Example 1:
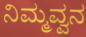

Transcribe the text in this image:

ನಿಮ್ಮವ್ವನ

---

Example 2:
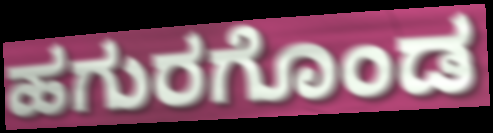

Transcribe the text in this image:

ಹಗುರಗೊಂಡ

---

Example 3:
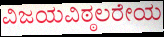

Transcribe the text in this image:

ವಿಜಯವಿಠ್ಠಲರೇಯ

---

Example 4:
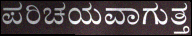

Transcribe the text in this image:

ಪರಿಚಯವಾಗುತ್ತ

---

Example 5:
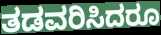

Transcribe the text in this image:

ತಡವರಿಸಿದರೂ